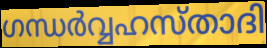
ഗന്ധർവ്വഹസ്താദി